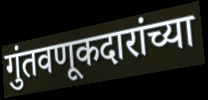
गुंतवणूकदारांच्या